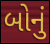
બોનું